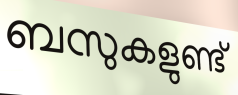
ബസുകളുണ്ട്